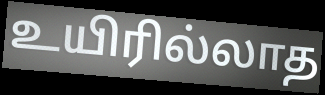
உயிரில்லாத